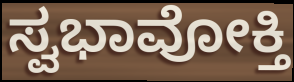
ಸ್ವಭಾವೋಕ್ತಿ